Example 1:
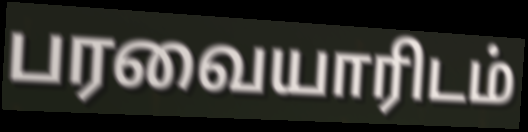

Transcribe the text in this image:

பரவையாரிடம்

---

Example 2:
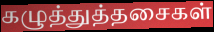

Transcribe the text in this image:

கழுத்துத்தசைகள்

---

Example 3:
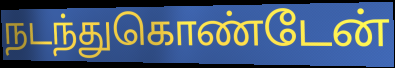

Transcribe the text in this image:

நடந்துகொண்டேன்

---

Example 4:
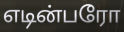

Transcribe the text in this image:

எடின்பரோ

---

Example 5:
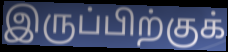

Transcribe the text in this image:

இருப்பிற்குக்